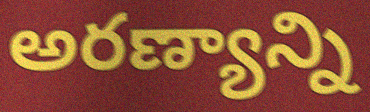
అరణ్యాన్ని